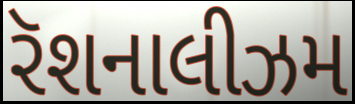
રૅશનાલીઝમ